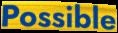
Possible